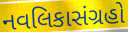
નવલિકાસંગ્રહો